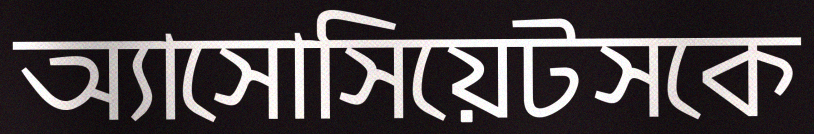
অ্যাসোসিয়েটসকে